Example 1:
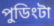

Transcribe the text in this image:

পুডিংটা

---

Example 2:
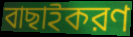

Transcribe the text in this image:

বাছাইকরণ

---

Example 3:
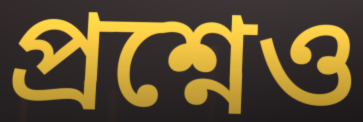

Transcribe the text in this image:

প্রশ্নেও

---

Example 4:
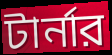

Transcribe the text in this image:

টার্নার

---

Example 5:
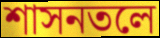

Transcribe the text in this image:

শাসনতলে